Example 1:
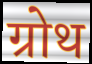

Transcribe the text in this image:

ग्रोथ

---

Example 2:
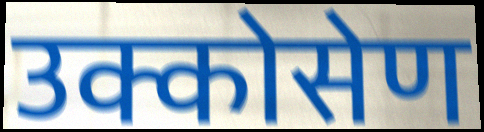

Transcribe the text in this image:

उक्कोसेण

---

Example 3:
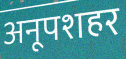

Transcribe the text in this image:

अनूपशहर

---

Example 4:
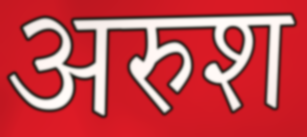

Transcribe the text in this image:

अरुश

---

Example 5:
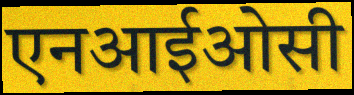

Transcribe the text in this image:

एनआईओसी